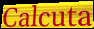
Calcuta